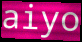
aiyo